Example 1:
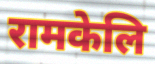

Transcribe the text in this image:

रामकेलि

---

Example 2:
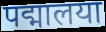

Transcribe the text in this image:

पद्मालया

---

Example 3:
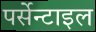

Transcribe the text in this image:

पर्सेन्टाइल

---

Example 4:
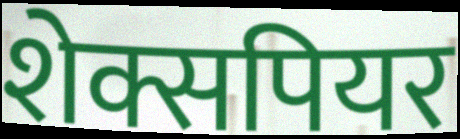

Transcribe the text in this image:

शेक्सपियर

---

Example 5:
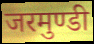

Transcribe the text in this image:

जरमुण्डी